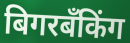
बिगरबँकिंग